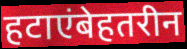
हटाएंबेहतरीन